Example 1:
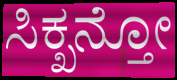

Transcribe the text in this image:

ಸಿಕ್ಖನ್ತೋ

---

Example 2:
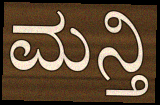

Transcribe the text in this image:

ಮನ್ತಿ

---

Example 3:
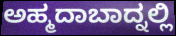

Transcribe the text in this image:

ಅಹ್ಮದಾಬಾದ್ನಲ್ಲಿ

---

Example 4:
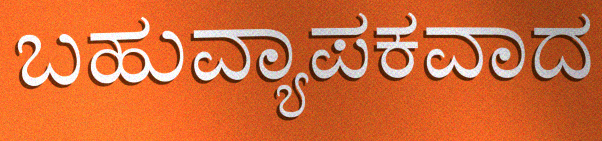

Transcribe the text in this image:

ಬಹುವ್ಯಾಪಕವಾದ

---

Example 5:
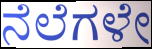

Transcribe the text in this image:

ನೆಲೆಗಳೇ